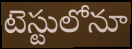
టెస్టులోనూ